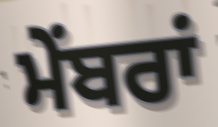
ਮੇਂਬਰਾਂ